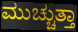
ಮುಚ್ಚುತ್ತಾ